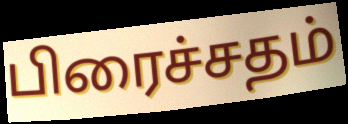
பிரைச்சதம்